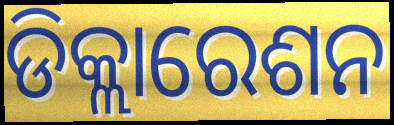
ଡିକ୍ଲାରେଶନ